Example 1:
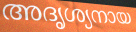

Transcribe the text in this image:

അദൃശ്യനായ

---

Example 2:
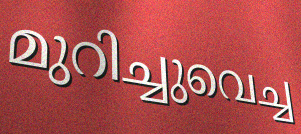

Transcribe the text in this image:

മുറിച്ചുവെച്ച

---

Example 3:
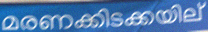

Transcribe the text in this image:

മരണക്കിടക്കയില്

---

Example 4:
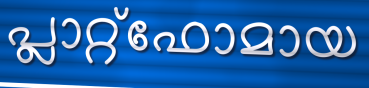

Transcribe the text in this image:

പ്ലാറ്റ്ഫോമായ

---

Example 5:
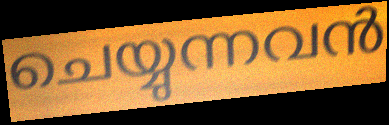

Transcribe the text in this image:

ചെയ്യുന്നവൻ